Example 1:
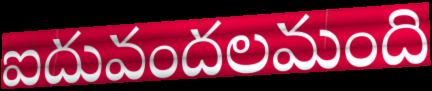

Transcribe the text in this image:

ఐదువందలమంది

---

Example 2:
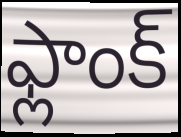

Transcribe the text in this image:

ఫ్లాంక్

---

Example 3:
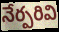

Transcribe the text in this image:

నేర్పరివి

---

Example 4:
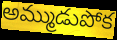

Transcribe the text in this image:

అమ్ముడుపోక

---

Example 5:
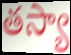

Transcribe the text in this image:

తస్యా